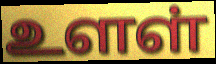
உளள்